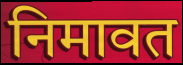
निमावत